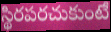
స్థిరపరచుకుంటే